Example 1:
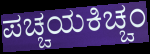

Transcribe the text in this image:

ಪಚ್ಚಯಕಿಚ್ಚಂ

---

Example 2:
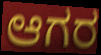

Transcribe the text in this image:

ಆಗರ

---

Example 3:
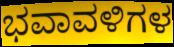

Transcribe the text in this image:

ಭವಾವಳಿಗಳ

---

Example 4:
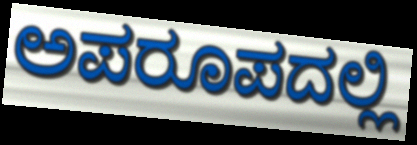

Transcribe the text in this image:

ಅಪರೂಪದಲ್ಲಿ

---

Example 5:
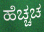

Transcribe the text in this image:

ಹೆಚ್ಚಚ